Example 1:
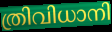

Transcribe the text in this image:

ത്രിവിധാനി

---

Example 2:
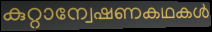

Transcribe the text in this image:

കുറ്റാന്വേഷണകഥകൾ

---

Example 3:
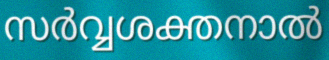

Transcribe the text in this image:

സർവ്വശക്തനാൽ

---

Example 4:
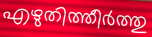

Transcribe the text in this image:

എഴുതിത്തീർത്തു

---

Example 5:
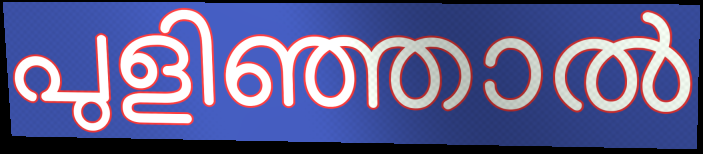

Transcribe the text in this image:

പുളിഞ്ഞാൽ